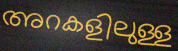
അറകളിലുള്ള